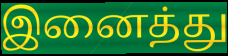
இனைத்து